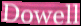
Dowell